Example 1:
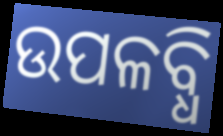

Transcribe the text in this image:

ଉପଳବ୍ଧି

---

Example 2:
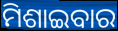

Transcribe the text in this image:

ମିଶାଇବାର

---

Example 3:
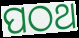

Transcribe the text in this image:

ପଠଥ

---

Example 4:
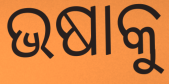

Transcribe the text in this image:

ଭଷାକୁ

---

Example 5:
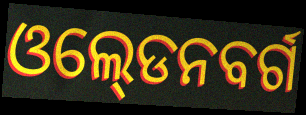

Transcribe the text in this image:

ଓଲ୍‍ଡେନବର୍ଗ